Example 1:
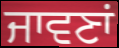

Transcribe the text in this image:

ਜਾਵਣਾਂ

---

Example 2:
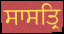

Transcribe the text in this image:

ਸਾਸਤ੍ਰਿ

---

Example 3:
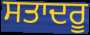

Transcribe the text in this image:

ਸਤਾਦਰੂ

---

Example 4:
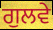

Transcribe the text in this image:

ਗੁਲਵੇ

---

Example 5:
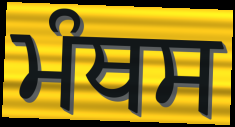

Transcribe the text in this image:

ਮੰਥਸ